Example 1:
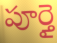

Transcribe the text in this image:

పూర్తై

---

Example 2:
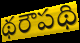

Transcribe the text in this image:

థరౌపథి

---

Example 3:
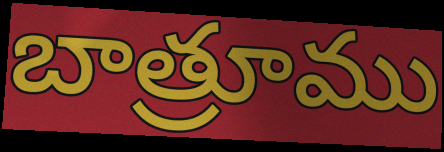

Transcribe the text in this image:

బాత్రూము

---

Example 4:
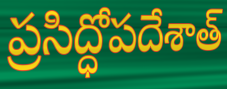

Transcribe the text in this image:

ప్రసిద్ధోపదేశాత్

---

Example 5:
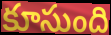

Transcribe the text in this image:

కూసుంది